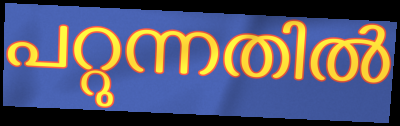
പറ്റുന്നതിൽ